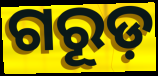
ଗରୂଡ଼